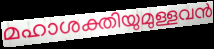
മഹാശക്തിയുമുള്ളവൻ